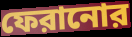
ফেরানোর